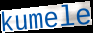
kumele